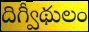
దిగ్వీథులం